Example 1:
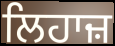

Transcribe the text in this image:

ਲਿਹਾਜ਼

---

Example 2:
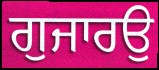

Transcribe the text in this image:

ਗੁਜਾਰਉ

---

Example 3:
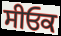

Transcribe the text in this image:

ਸੀਓਕ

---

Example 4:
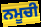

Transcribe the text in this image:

ਨਮੂਚੀ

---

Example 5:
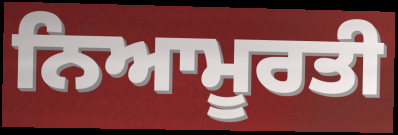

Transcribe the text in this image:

ਨਿਆਮੂਰਤੀ